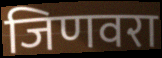
जिणवरा